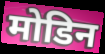
मोडिन